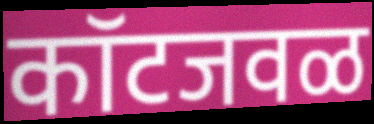
कॉटजवळ